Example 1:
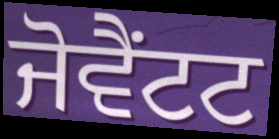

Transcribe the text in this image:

ਜੋਵੈਂਟਟ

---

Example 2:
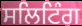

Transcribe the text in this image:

ਸਲਿਟਿੰਗ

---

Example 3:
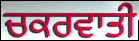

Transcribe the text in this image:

ਚਕਰਵਾਤੀ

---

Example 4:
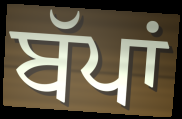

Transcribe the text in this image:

ਬੱਪਾਂ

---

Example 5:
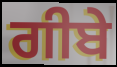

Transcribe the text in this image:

ਗੀਬੇ